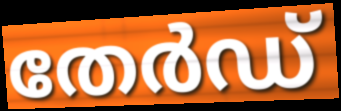
തേർഡ്